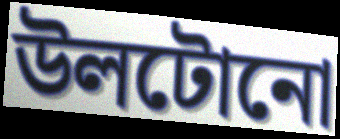
উলটোনো